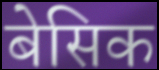
बेसिक